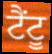
ਟੈਂਟੂ